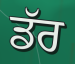
ਡੱਰ